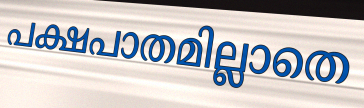
പക്ഷപാതമില്ലാതെ